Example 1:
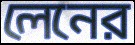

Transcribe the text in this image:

লেনের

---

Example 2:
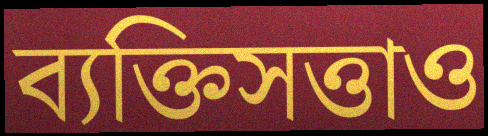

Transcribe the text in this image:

ব্যক্তিসত্তাও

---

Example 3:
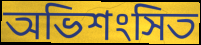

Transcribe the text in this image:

অভিশংসিত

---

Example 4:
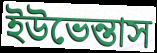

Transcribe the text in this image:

ইউভেন্তাস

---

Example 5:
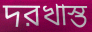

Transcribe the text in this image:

দরখাস্ত